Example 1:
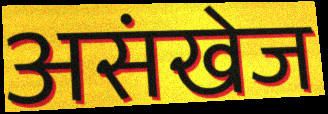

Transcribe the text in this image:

असंखेज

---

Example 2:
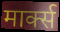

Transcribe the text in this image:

मार्क्स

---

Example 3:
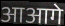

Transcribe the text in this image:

आआगे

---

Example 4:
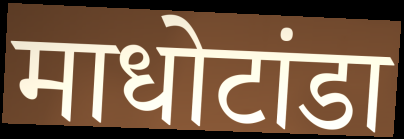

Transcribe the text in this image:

माधोटांडा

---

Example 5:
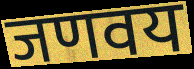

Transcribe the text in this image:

जणवय